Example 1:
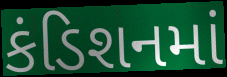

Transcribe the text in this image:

કંડિશનમાં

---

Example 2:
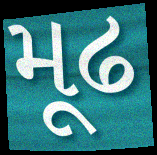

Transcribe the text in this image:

મૂઢ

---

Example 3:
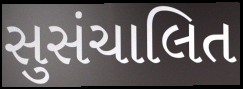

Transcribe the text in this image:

સુસંચાલિત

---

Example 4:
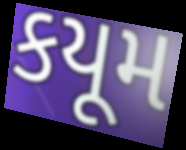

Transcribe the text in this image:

કયૂમ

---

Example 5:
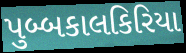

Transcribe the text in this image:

પુબ્બકાલકિરિયા